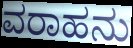
ವರಾಹನು